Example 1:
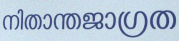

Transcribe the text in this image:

നിതാന്തജാഗ്രത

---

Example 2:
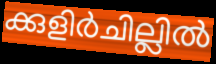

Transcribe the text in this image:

ക്കുളിർചില്ലിൽ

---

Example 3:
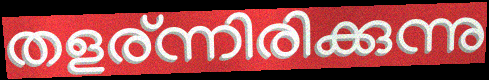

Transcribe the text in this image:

തളര്ന്നിരിക്കുന്നു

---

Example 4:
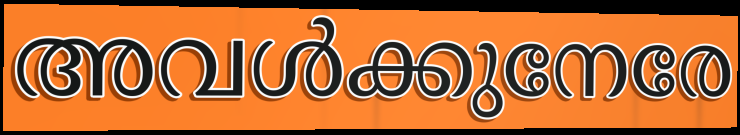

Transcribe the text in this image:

അവൾക്കുനേരേ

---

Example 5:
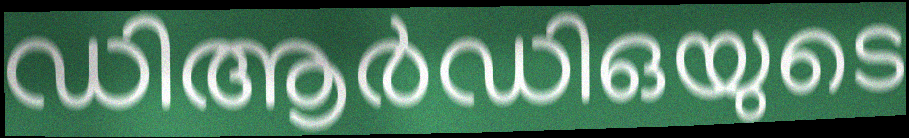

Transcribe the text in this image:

ഡിആർഡിഒയുടെ